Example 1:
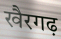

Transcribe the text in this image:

खैरगढ़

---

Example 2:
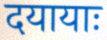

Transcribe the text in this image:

दयायाः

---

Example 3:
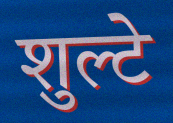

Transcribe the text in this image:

शुल्टे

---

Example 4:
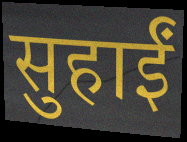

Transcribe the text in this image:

सुहाईं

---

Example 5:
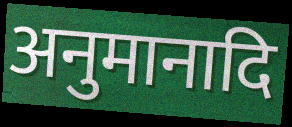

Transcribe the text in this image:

अनुमानादि